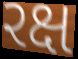
રક્ષ